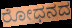
ರೋಧನದ